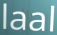
laal